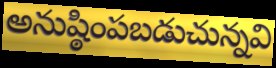
అనుష్ఠింపబడుచున్నవి